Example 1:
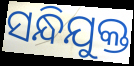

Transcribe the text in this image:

ସନ୍ଧିଯୁକ୍ତ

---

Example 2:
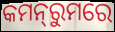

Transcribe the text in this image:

କମନ୍‌ରୁମରେ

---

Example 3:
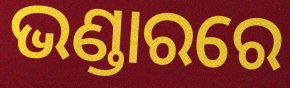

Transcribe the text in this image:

ଭଣ୍ଡାରରେ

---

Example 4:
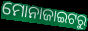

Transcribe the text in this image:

ମୋନାଜାଇଟରୁ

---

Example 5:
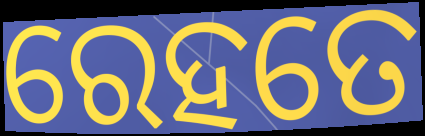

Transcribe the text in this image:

ରେହତେ